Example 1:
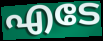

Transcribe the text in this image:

എടേ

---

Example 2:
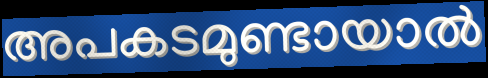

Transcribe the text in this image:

അപകടമുണ്ടായാൽ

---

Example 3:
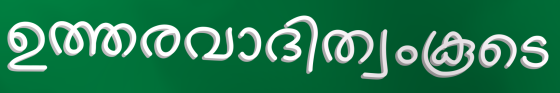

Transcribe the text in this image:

ഉത്തരവാദിത്വംകൂടെ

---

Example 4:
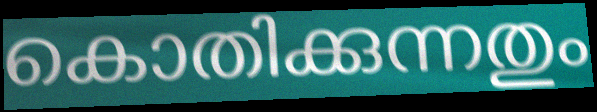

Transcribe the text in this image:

കൊതിക്കുന്നതും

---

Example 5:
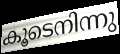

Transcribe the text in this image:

കൂടെനിന്നു